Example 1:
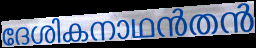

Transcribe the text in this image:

ദേശികനാഥൻതൻ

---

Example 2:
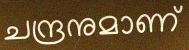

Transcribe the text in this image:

ചന്ദ്രനുമാണ്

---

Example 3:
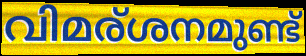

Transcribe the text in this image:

വിമര്ശനമുണ്ട്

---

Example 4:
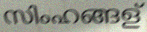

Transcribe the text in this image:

സിംഹങ്ങള്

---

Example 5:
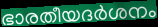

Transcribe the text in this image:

ഭാരതീയദർശനം